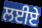
ਲਈਏ